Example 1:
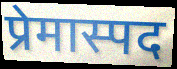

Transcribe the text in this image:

प्रेमास्पद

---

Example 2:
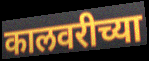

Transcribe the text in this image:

कालवरीच्या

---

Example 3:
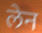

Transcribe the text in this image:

लेन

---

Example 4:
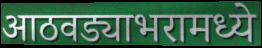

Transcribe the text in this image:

आठवड्याभरामध्ये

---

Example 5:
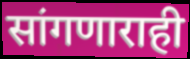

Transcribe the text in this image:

सांगणाराही